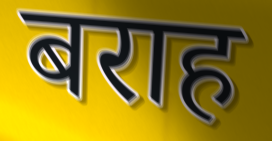
बराह